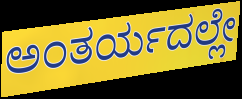
ಅಂತರ್ಯದಲ್ಲೇ